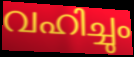
വഹിച്ചും